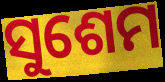
ସୁଶେମ